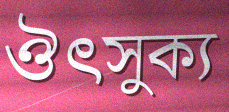
ঔৎসুক্য